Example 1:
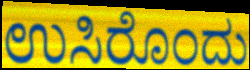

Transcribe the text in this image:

ಉಸಿರೊಂದು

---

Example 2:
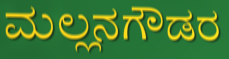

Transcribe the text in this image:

ಮಲ್ಲನಗೌಡರ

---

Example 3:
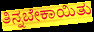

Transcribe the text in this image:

ತಿನ್ನಬೇಕಾಯಿತು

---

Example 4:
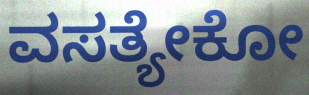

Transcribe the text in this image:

ವಸತ್ಯೇಕೋ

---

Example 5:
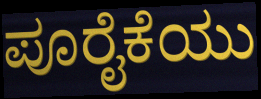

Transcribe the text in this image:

ಪೂರೈಕೆಯು